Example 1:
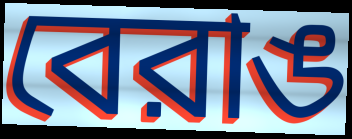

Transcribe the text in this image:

বেরাঙ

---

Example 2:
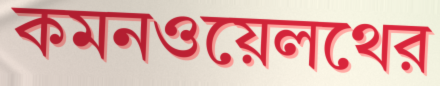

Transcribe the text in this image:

কমনওয়েলথের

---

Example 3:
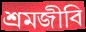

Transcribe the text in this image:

শ্রমজীবি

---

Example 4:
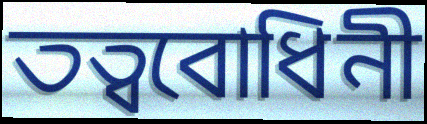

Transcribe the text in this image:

তত্ববোধিনী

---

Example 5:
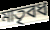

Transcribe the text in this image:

মাতৃবধ